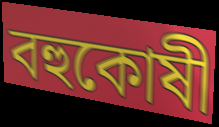
বহুকোষী